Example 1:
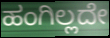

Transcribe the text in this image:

ಹಂಗಿಲ್ಲದೇ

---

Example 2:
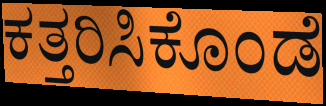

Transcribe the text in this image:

ಕತ್ತರಿಸಿಕೊಂಡೆ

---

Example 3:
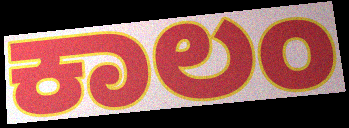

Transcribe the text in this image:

ಕಾಲಂ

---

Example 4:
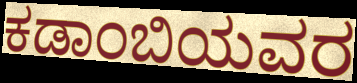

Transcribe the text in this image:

ಕಡಾಂಬಿಯವರ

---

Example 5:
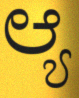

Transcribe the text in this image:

ಆ್ಯ